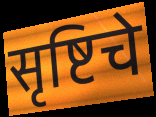
सृष्टिचे